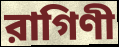
রাগিণী